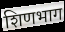
शिणभाग